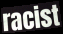
racist